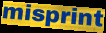
misprint